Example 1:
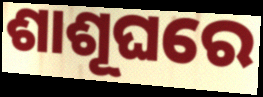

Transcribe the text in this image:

ଶାଶୂଘରେ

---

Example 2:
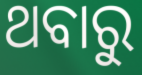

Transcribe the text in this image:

ଥବାରୁ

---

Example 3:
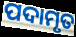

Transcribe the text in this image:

ପଦାମୃତ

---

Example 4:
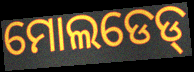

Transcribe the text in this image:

ମୋଲଡେଡ୍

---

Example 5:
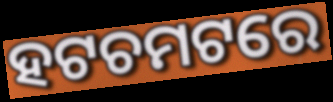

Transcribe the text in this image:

ହଟଚମଟରେ